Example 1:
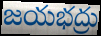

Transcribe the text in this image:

జయభద్రు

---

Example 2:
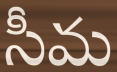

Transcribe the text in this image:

సీమ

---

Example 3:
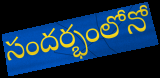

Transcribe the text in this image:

సందర్భంలోనో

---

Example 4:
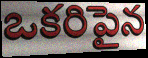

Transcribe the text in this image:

ఒకరిపైన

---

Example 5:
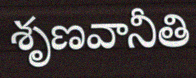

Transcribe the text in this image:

శృణవానీతి